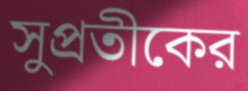
সুপ্রতীকের